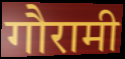
गौरामी